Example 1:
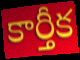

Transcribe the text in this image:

కార్తీక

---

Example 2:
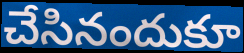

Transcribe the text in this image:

చేసినందుకూ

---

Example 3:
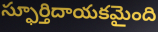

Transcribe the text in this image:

స్ఫూర్తిదాయకమైంది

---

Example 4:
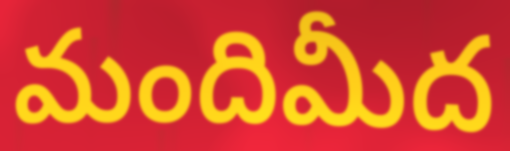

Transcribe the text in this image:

మందిమీద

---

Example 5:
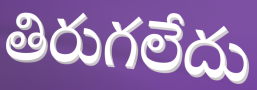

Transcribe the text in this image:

తిరుగలేదు